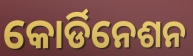
କୋର୍ଡିନେଶନ